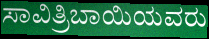
ಸಾವಿತ್ರಿಬಾಯಿಯವರು